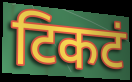
टिकटं